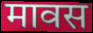
मावस